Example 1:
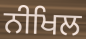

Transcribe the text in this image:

ਨੀਖਿਲ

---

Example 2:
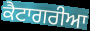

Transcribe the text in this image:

ਕੈਟਾਗਰੀਆ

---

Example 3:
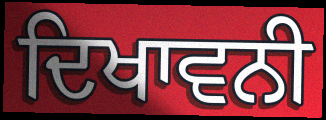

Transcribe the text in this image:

ਦਿਖਾਵਨੀ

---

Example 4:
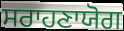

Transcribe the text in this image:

ਸਰਾਹਣਾਯੋਗ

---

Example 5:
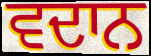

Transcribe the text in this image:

ਵਦਾਨ